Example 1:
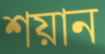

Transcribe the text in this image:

শয়ান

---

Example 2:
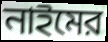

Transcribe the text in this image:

নাইমের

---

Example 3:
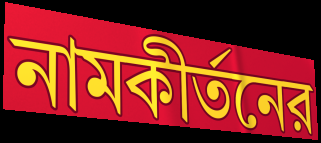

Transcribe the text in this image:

নামকীর্তনের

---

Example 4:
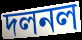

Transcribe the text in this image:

দলনল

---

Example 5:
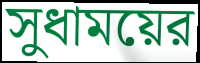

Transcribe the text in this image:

সুধাময়ের